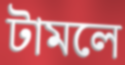
টামলে